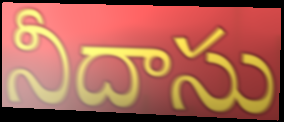
నీదాసు